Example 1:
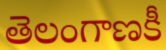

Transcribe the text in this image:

తెలంగాణకీ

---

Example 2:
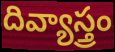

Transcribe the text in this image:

దివ్యాస్త్రం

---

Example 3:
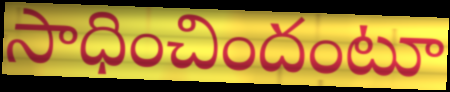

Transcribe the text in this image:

సాధించిందంటూ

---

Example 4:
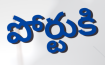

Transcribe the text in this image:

పోర్టుకి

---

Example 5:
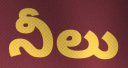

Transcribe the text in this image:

నీలు